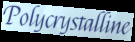
Polycrystalline